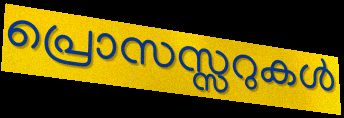
പ്രൊസസ്സറുകൾ